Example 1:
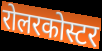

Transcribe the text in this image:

रोलरकोस्टर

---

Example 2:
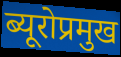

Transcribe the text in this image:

ब्यूरोप्रमुख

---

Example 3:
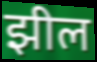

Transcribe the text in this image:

झील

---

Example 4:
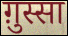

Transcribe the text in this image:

ग़ुस्सा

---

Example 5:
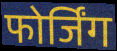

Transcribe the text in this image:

फोर्जिंग